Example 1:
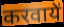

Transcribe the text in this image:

करवायें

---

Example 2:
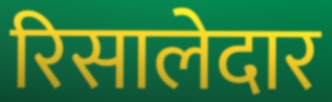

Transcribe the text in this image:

रिसालेदार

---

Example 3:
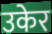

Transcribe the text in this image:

उकेर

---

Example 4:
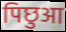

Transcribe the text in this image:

पिछुआ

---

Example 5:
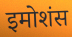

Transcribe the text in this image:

इमोशंस